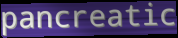
pancreatic